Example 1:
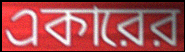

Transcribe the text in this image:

একারের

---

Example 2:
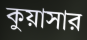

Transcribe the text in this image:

কুয়াসার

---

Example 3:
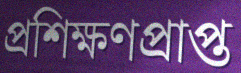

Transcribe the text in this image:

প্রশিক্ষণপ্রাপ্ত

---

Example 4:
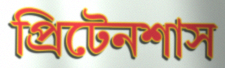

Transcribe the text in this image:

প্রিটেনশাস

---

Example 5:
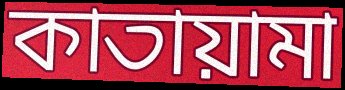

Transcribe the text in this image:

কাতায়ামা